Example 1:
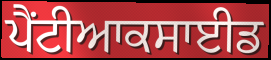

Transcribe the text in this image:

ਪੈਂਟੀਆਕਸਾਈਡ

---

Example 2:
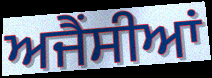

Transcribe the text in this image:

ਅਜੈਂਸੀਆਂ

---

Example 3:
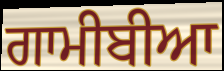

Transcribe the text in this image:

ਗਾਮੀਬੀਆ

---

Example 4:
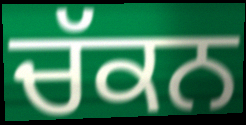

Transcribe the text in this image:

ਚੱਕਨ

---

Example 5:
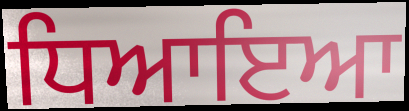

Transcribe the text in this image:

ਧਿਆਇਆ